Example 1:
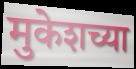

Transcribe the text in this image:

मुकेशच्या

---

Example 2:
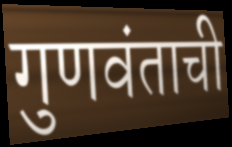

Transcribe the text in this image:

गुणवंताची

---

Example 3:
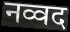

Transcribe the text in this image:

नव्वद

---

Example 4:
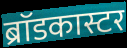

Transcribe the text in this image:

ब्रॉडकास्टर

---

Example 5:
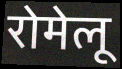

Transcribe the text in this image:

रोमेलू